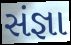
સંજ્ઞા